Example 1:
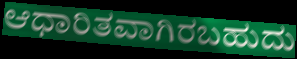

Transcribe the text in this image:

ಆಧಾರಿತವಾಗಿರಬಹುದು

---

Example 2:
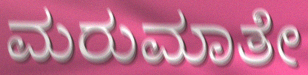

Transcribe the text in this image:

ಮರುಮಾತೇ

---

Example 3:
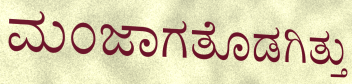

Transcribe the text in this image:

ಮಂಜಾಗತೊಡಗಿತ್ತು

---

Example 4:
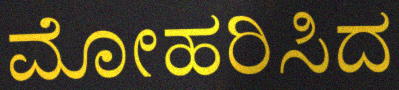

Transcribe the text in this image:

ಮೋಹರಿಸಿದ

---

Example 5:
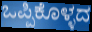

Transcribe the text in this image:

ಒಪ್ಪಿಕೊಳ್ಳದ